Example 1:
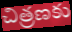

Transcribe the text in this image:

చిత్రణకు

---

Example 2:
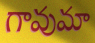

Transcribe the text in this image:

గావుమా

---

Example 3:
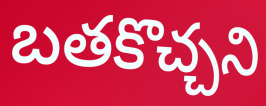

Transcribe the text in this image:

బతకొచ్చని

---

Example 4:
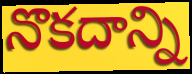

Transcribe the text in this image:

నొకదాన్ని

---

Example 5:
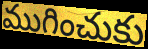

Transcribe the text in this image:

ముగించుకు